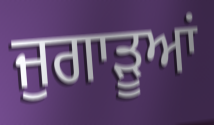
ਜੁਗਾੜੂਆਂ